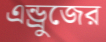
এন্ড্রুজের